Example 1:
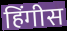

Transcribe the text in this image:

हिंगीस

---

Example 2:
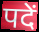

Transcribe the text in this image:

पदें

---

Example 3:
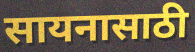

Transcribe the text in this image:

सायनासाठी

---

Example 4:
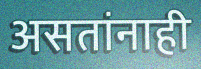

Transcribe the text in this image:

असतांनाही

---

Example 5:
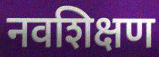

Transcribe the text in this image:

नवशिक्षण